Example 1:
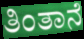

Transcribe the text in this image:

ತಿಂತಾನೆ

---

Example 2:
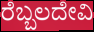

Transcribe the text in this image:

ರೆಬ್ಬಲದೇವಿ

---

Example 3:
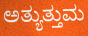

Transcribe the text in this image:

ಅತ್ಯುತ್ತುಮ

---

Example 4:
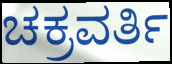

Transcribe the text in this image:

ಚಕ್ರವರ್ತಿ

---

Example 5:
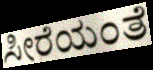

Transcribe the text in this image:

ಸೀರೆಯಂತೆ